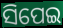
ସିପେଇ